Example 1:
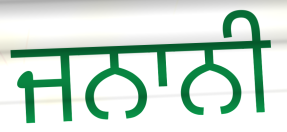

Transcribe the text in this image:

ਜਨਾਨੀ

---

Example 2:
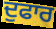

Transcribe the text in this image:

ਦੁਫਾਰ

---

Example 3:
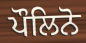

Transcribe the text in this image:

ਪੌਲਿਨੋ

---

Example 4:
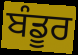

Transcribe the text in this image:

ਬੰਡੂਰ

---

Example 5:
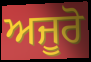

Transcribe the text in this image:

ਅਜੂਰੋ